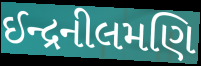
ઈન્દ્રનીલમણિ